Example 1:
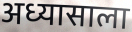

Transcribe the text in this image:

अध्यासाला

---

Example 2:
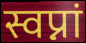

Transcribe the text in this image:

स्वप्नां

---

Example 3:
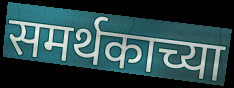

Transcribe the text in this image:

समर्थकाच्या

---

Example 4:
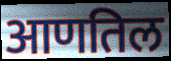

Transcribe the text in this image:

आणतिल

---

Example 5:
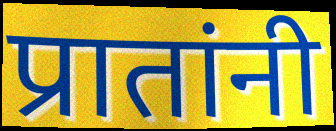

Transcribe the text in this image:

प्रातांनी